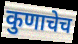
कुणाचेच